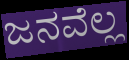
ಜನವೆಲ್ಲ